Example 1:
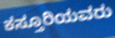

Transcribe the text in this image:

ಕಸ್ತೂರಿಯವರು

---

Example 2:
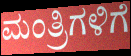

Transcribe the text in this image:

ಮಂತ್ರಿಗಳಿಗೆ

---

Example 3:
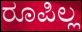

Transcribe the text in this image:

ರೂಪಿಲ್ಲ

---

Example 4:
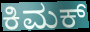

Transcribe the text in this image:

ಕಿಮಕ್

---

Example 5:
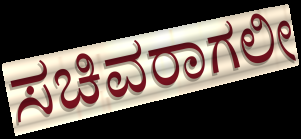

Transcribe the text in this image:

ಸಚಿವರಾಗಲೀ